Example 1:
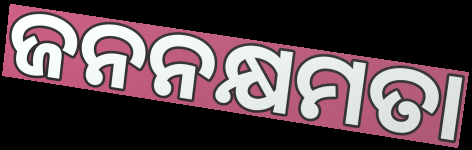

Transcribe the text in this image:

ଜନନକ୍ଷମତା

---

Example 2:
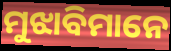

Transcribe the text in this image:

ମୁଝାବିମାନେ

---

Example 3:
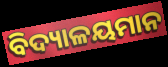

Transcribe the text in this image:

ବିଦ୍ୟାଳୟମାନ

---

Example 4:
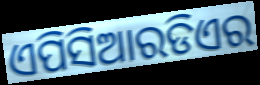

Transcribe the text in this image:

ଏପିସିଆରଡିଏର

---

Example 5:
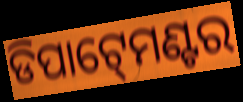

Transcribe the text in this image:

ଡିପାଟ୍‍ମେଣ୍ଟର